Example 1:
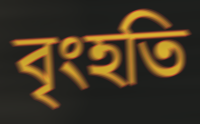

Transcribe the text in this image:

বৃংহতি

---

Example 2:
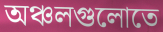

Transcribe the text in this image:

অঞ্চলগুলোতে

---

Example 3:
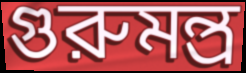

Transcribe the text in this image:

গুরুমন্ত্র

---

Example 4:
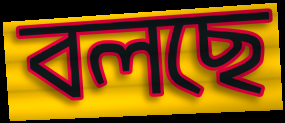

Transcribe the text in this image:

বলছে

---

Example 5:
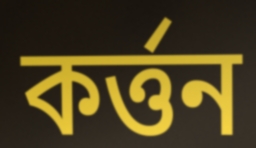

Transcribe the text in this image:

কর্ত্তন